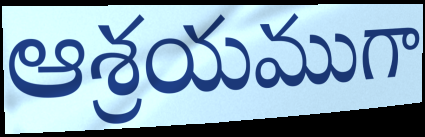
ఆశ్రయముగా